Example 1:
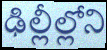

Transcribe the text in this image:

ఢిల్లీల్లోని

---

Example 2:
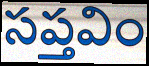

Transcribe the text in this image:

సప్తవిం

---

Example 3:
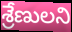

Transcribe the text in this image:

శ్రేణులని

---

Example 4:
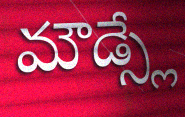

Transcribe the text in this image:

మౌడ్స్లే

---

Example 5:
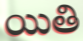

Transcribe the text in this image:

యితి